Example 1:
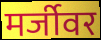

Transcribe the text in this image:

मर्जीवर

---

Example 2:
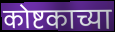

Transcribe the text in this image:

कोष्टकाच्या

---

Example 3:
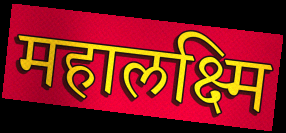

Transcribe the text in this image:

महालक्ष्मि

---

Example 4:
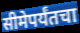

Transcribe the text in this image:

सीमेपर्यंतचा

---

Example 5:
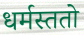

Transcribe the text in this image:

धर्मस्ततो